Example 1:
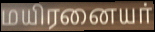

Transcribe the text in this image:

மயிரனையர்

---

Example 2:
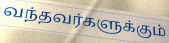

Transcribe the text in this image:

வந்தவர்களுக்கும்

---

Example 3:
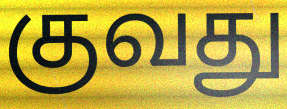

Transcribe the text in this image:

குவது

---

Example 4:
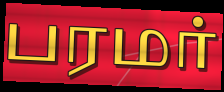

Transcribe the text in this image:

பரமர்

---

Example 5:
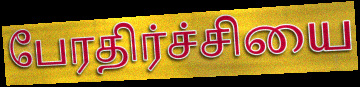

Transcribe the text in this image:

பேரதிர்ச்சியை